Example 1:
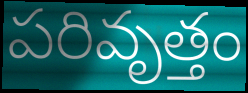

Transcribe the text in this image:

పరివృత్తం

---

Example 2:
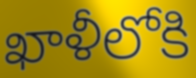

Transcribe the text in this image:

ఖాళీలోకి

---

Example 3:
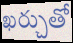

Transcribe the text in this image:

ఖర్చుతో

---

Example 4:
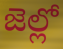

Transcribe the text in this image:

జెల్లో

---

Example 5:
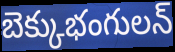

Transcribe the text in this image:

బెక్కుభంగులన్